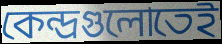
কেন্দ্রগুলোতেই